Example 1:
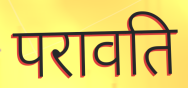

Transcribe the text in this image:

परावति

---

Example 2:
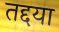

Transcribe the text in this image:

तद्दया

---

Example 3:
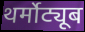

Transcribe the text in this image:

थर्मोट्यूब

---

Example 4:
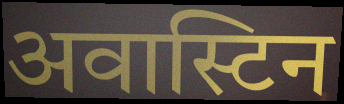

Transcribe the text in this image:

अवास्टिन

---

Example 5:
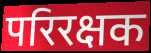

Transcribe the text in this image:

परिरक्षक